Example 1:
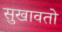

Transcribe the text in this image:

सुखावतो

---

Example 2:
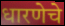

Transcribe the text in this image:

धारणेचे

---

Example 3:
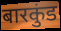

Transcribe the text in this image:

बारकुंड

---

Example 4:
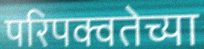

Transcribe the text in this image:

परिपक्वतेच्या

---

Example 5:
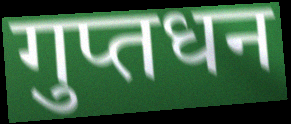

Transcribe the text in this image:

गुप्तधन